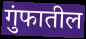
गुंफातील